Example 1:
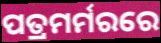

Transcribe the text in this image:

ପତ୍ରମର୍ମରରେ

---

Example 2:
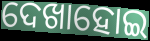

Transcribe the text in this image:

ଦେଖାହୋଇ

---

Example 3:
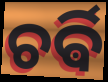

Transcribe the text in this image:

ଚର୍ଵି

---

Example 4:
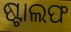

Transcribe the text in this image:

ଷ୍ଟାଲଫ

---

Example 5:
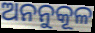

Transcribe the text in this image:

ଅନନୁକୂଳ